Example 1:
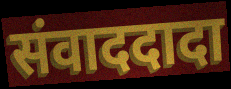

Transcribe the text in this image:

संवाददादा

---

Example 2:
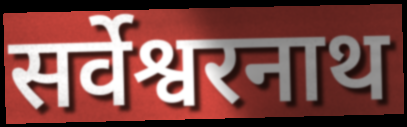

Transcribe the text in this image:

सर्वेश्वरनाथ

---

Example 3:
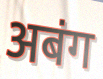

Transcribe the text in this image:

अबंग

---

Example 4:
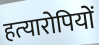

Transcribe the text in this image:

हत्‍यारोपियों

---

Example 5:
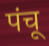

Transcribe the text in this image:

पंचू